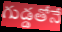
గుడ్డతోనే